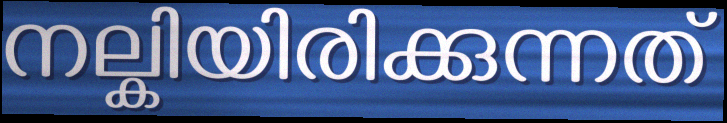
നല്കിയിരിക്കുന്നത്